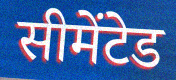
सीमेंटेड